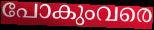
പോകുംവരെ